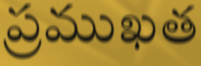
ప్రముఖత